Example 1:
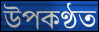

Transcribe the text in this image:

উপকণ্ঠত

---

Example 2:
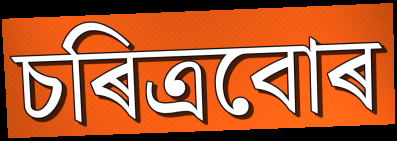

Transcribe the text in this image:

চৰিত্ৰবোৰ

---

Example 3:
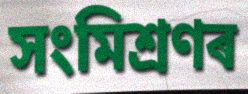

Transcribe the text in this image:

সংমিশ্ৰণৰ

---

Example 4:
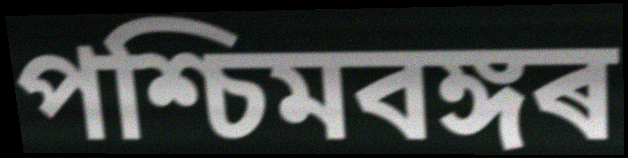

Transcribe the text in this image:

পশ্চিমবঙ্গৰ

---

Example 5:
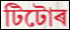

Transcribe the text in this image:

টিটোৰ